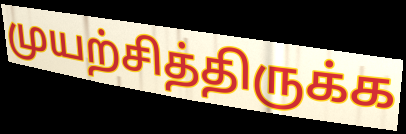
முயற்சித்திருக்க